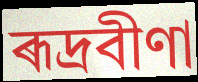
ৰূদ্ৰবীণা